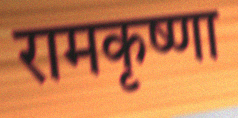
रामकृष्णा